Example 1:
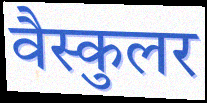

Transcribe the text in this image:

वैस्कुलर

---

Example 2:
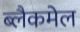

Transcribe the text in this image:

ब्लैकमेल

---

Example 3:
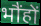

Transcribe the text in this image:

भौंहों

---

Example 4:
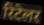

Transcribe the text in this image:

रिटेलर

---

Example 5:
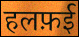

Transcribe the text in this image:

हलफ़ई